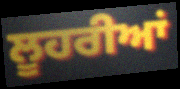
ਲੂਹਰੀਆਂ